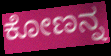
ಕೋಣನ್ನ